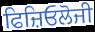
ਫਿਜ਼ਿਓਲੋਜੀ